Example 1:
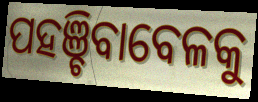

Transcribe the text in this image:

ପହଞ୍ଚିବାବେଳକୁ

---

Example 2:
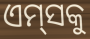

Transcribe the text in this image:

ଏମ୍‌ସକୁ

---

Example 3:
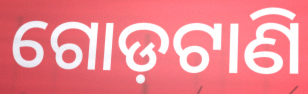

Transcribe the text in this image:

ଗୋଡ଼ଟାଣି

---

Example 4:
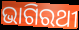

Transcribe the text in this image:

ଭାଗିରଥୀ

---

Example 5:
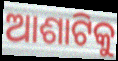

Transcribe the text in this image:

ଆଶାଟିକୁ